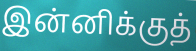
இன்னிக்குத்